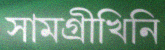
সামগ্ৰীখিনি